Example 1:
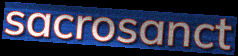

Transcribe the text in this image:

sacrosanct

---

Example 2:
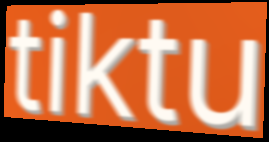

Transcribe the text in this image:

tiktu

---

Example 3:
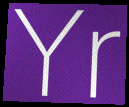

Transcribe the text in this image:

Yr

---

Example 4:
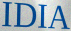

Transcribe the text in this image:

IDIA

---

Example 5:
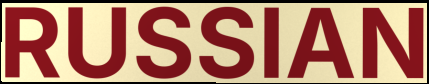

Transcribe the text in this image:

RUSSIAN